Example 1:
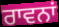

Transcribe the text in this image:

ਰਾਵਨਾਂ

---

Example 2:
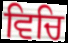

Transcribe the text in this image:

ਵਿਚਿ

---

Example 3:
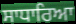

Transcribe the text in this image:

ਸਾਧਾਰਿਆ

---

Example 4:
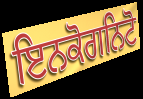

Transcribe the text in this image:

ਇਨਕੋਗਨਿਟੋ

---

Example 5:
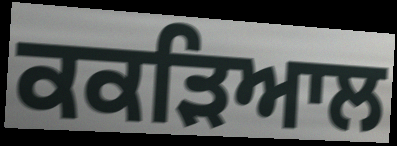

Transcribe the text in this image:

ਕਕੜਿਆਲ